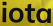
iota